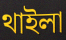
থাইলা